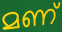
മണ്